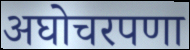
अघोचरपणा